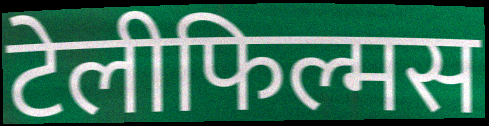
टेलीफिल्मस